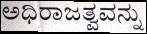
ಅಧಿರಾಜತ್ವವನ್ನು